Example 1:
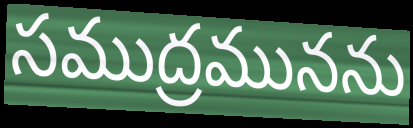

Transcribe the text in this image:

సముద్రమునను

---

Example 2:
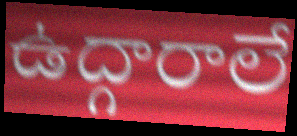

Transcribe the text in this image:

ఉద్గారాలే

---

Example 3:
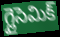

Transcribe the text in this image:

గ్లైసెమిక్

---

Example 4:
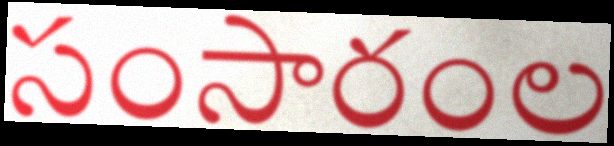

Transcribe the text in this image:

సంసారంల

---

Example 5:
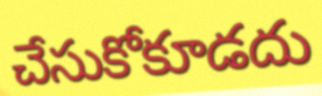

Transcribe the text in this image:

చేసుకోకూడదు